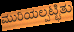
ಮುರಿಯಲ್ಪಟ್ಟಿತು